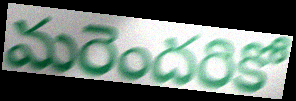
మరెందరికో